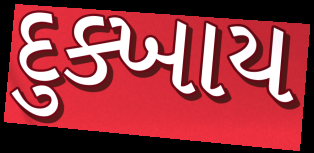
દુક્ખાય